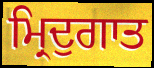
ਮ੍ਰਿਦੁਗਾਤ